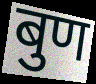
बुण